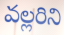
వల్లరిని